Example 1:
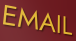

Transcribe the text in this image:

EMAIL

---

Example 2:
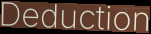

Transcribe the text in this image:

Deduction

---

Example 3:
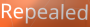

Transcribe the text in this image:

Repealed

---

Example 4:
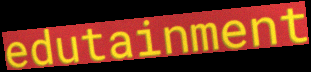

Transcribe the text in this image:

edutainment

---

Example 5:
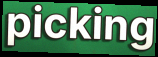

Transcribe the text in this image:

picking